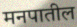
मनपातील